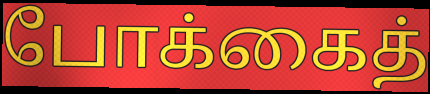
போக்கைத்